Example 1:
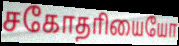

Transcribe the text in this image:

சகோதரியையோ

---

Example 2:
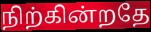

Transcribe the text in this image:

நிற்கின்றதே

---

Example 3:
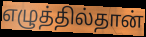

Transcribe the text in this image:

எழுத்தில்தான்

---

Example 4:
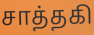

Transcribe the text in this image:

சாத்தகி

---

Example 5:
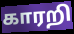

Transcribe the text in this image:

காரறி